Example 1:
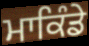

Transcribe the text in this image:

ਮਾਕਿੰਡੇ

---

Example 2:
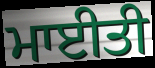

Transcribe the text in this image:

ਮਾਈਤੀ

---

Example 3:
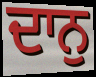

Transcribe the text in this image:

ਦਾਨੁ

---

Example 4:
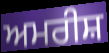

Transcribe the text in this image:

ਅਮਰੀਸ਼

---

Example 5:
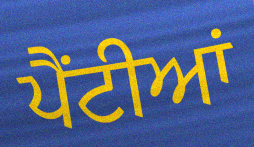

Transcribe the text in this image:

ਪੈਂਟੀਆਂ